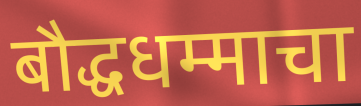
बौद्धधम्माचा